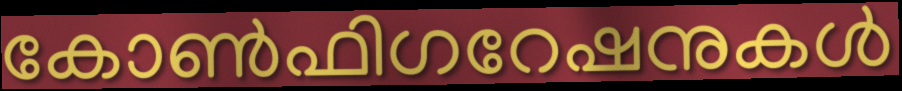
കോൺഫിഗറേഷനുകൾ